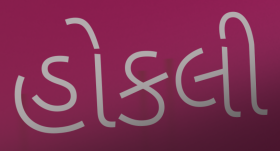
હોકલી